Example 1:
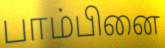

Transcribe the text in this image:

பாம்பினை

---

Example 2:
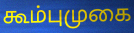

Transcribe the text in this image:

கூம்புமுகை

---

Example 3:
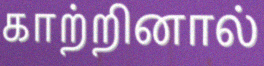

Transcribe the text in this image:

காற்றினால்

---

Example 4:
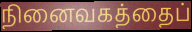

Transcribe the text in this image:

நினைவகத்தைப்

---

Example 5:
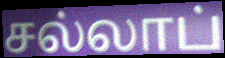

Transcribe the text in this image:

சல்லாப்